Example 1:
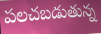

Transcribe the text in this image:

పలచబడుతున్న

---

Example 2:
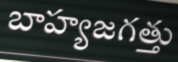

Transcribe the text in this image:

బాహ్యజగత్తు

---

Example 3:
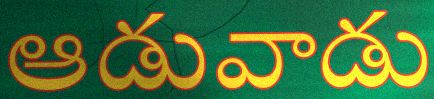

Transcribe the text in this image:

ఆడువాడు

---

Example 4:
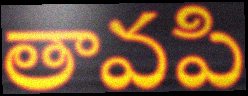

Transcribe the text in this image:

తావపి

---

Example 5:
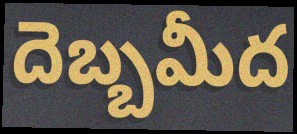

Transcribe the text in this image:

దెబ్బమీద